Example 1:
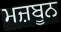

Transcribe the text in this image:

ਮਜ਼ਬੂਨ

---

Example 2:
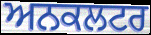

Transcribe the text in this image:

ਅਨਕਲਟਰ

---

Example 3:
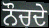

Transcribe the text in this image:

ਨੌਚਦੇ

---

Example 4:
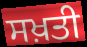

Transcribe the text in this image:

ਸਖ਼ਤੀ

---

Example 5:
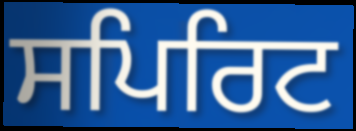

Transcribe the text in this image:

ਸਪਿਰਿਟ